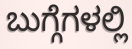
ಬುಗ್ಗೆಗಳಲ್ಲಿ